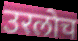
उरलोच